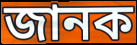
জানক